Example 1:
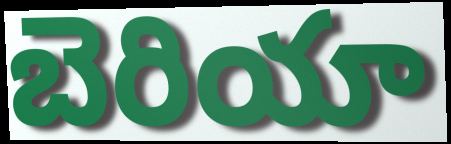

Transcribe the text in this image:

బెరియా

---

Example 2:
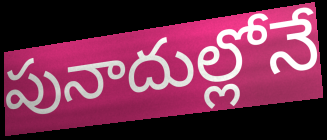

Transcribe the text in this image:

పునాదుల్లోనే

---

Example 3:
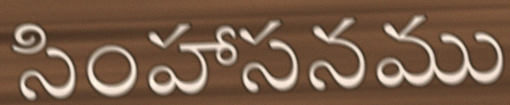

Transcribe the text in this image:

సింహాసనము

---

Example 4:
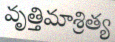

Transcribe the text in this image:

వృత్తిమాశ్రిత్య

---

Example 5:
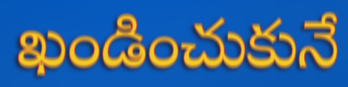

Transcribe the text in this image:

ఖండించుకునే